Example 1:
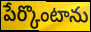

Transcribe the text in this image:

పేర్కొంటాను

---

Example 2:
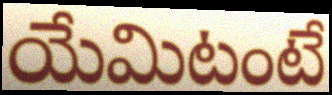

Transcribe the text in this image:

యేమిటంటే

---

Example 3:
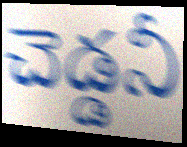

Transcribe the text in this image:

చెడ్డనీ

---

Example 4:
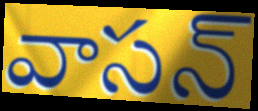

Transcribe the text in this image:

వాసన్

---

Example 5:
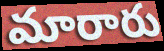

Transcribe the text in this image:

మారారు